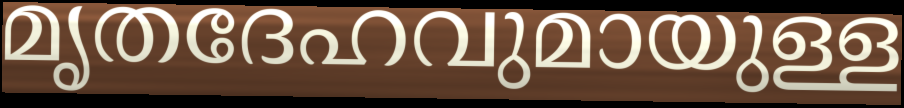
മൃതദേഹവുമായുള്ള